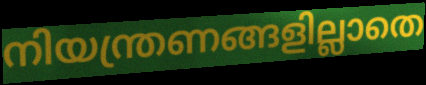
നിയന്ത്രണങ്ങളില്ലാതെ